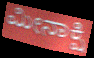
ಮೀನಾಕ್ಷಿ